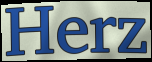
Herz